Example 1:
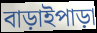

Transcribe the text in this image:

বাড়াইপাড়া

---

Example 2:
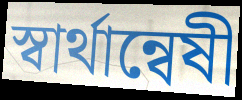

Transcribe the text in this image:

স্বার্থান্বেষী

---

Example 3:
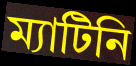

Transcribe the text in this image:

ম্যাটিনি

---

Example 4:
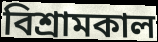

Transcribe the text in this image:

বিশ্রামকাল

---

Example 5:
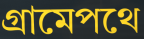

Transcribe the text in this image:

গ্রামেপথে